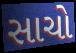
સાચો